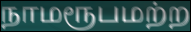
நாமரூபமற்ற